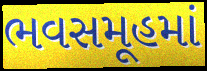
ભવસમૂહમાં